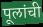
पूलांची